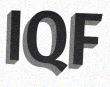
IQF